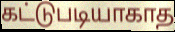
கட்டுபடியாகாத